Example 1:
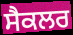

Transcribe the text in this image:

ਸੈਕਲਰ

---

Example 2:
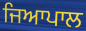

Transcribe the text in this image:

ਜਿਆਪਾਲ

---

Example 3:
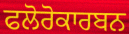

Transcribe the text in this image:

ਫਲੋਰੋਕਾਰਬਨ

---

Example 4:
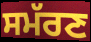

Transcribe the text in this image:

ਸਮੱਰਣ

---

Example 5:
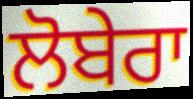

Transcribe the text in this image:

ਲੋਬੇਰਾ